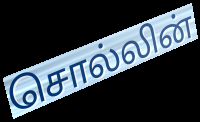
சொல்லின்